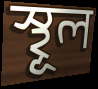
স্থূল